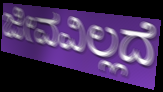
ಜೀವವಿಲ್ಲದೆ